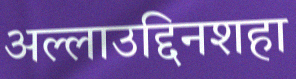
अल्लाउद्दिनशहा